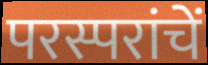
परस्परांचें